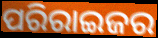
ପରିରାଇଜର